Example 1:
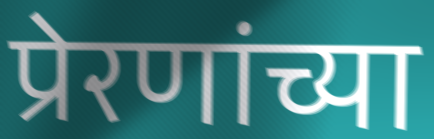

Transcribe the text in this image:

प्रेरणांच्या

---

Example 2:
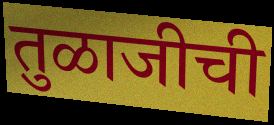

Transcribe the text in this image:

तुळाजीची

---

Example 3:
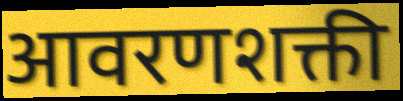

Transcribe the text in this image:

आवरणशक्ती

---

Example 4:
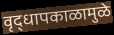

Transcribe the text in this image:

वृद्धापकाळामुळे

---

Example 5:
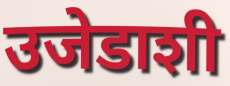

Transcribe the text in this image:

उजेडाशी